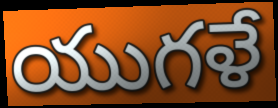
యుగళే